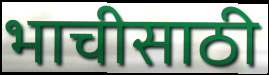
भाचीसाठी